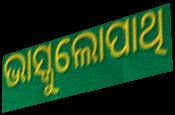
ଭାସ୍କୁଲୋପାଥି